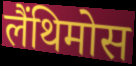
लैंथिमोस